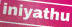
iniyathu